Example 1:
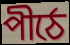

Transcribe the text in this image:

পীঠে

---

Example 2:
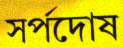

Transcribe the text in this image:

সর্পদোষ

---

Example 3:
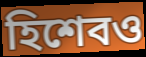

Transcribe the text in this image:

হিশেবও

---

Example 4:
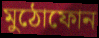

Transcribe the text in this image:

মুঠোফোন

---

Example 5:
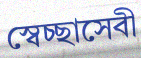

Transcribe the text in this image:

স্বেচ্ছাসেবী